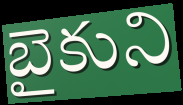
బైకుని